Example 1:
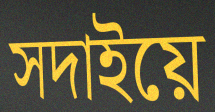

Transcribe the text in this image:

সদাইয়ে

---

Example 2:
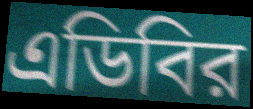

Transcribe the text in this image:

এডিবির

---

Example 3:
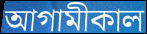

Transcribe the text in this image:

আগামীকাল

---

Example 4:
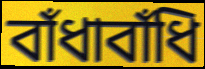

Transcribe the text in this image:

বাঁধাবাঁধি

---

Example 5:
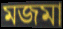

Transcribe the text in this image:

মজমা